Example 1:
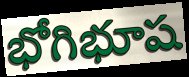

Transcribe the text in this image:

భోగిభూష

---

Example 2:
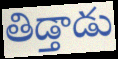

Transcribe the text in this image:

తిడ్తాడు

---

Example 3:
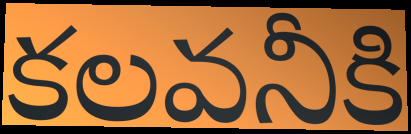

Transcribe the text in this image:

కలవనీకి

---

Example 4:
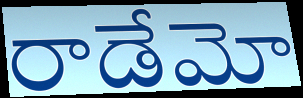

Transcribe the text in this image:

రాడేమో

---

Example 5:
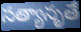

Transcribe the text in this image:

సత్యానృతే